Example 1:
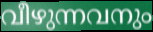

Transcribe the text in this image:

വീഴുന്നവനും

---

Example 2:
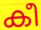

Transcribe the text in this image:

കീ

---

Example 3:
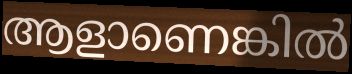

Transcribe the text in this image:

ആളാണെങ്കിൽ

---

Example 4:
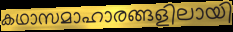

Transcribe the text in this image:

കഥാസമാഹാരങ്ങളിലായി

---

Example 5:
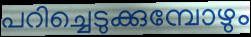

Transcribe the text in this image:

പറിച്ചെടുക്കുമ്പോഴും